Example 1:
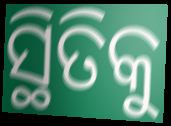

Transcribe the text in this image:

ସ୍ଥିତିକୁ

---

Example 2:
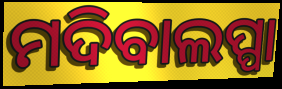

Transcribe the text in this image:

ମଦିବାଲପ୍ପା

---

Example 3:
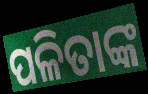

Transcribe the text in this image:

ପଳିତାଙ୍କ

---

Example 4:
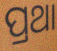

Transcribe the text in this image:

ପ୍ରଥା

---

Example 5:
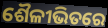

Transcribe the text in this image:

ଶୈଳୀଭିତରେ